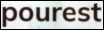
pourest